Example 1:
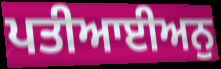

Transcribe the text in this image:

ਪਤੀਆਈਅਨੁ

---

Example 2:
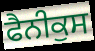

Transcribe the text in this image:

ਫੈਨੀਕੁਸ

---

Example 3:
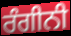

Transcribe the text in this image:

ਰੰਗੀਨੀ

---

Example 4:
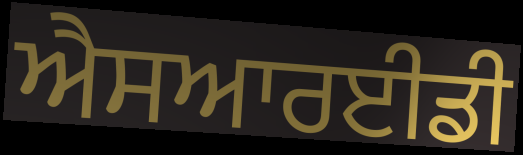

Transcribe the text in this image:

ਐਸਆਰਈਡੀ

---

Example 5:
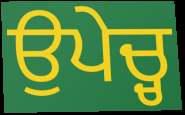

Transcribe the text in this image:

ਉਪੇਚ੍ਚ